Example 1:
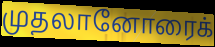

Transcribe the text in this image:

முதலானோரைக்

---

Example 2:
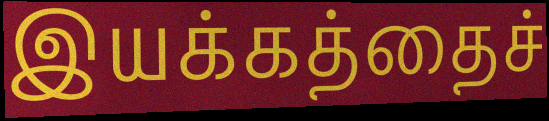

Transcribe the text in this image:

இயக்கத்தைச்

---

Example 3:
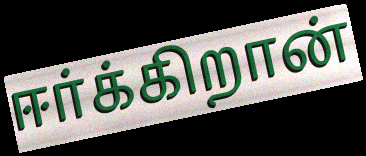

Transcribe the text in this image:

ஈர்க்கிறான்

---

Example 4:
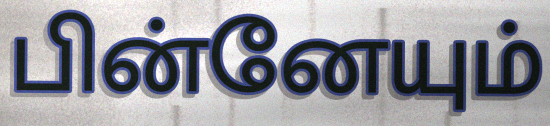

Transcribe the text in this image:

பின்னேயும்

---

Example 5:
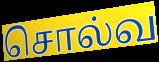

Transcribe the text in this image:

சொல்வ